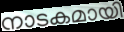
നാടകമായി